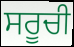
ਸਰੂਚੀ